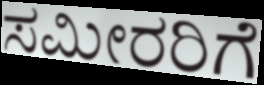
ಸಮೀರರಿಗೆ